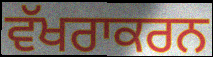
ਵੱਖਰਾਕਰਨ